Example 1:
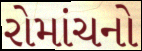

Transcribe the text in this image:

રોમાંચનો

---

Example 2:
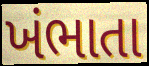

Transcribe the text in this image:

ખંભાતા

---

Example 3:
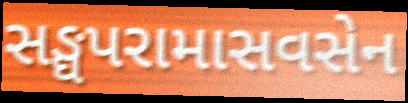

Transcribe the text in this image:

સઙ્ઘપરામાસવસેન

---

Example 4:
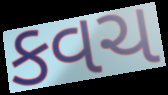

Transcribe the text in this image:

કવચ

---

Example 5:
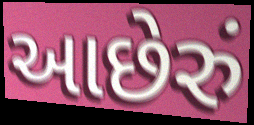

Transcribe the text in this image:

આછેરું